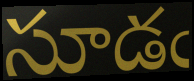
సూడఁ